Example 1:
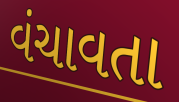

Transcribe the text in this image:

વંચાવતા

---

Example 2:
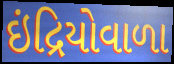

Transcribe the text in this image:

ઇંદ્રિયોવાળા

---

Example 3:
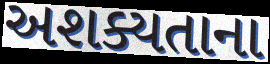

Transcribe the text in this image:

અશક્યતાના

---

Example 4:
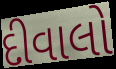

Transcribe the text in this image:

દીવાલો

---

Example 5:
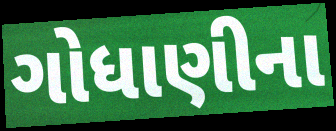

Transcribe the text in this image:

ગોધાણીના